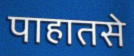
पाहातसे